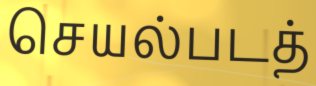
செயல்படத்